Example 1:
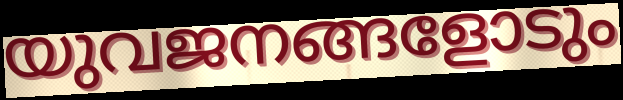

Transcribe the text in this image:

യുവജനങ്ങളോടും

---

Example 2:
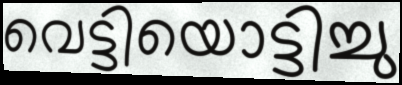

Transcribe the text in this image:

വെട്ടിയൊട്ടിച്ചു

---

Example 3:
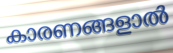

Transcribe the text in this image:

കാരണങ്ങളാൽ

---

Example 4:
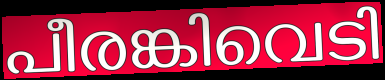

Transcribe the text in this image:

പീരങ്കിവെടി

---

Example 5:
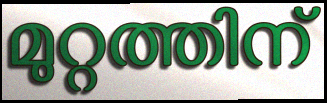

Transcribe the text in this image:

മുറ്റത്തിന്